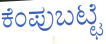
ಕೆಂಪುಬಟ್ಟೆ